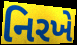
નિરખે